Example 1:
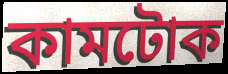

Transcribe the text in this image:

কামটোক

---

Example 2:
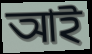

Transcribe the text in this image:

আই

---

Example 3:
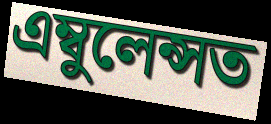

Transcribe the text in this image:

এম্বুলেন্সত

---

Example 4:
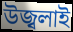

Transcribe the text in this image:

উজ্বলাই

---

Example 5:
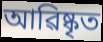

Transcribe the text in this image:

আৱিষ্কৃত